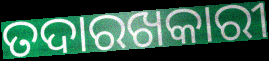
ତଦାରଖକାରୀ